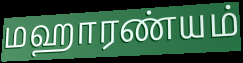
மஹாரண்யம்